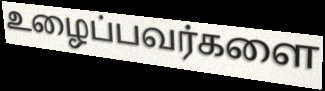
உழைப்பவர்களை